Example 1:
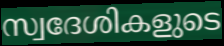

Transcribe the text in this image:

സ്വദേശികളുടെ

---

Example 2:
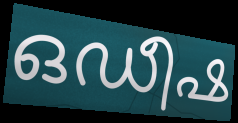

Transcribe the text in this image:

ഒഡീഷ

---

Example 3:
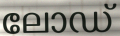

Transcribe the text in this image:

ലോഡ്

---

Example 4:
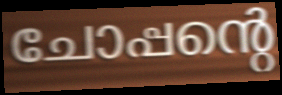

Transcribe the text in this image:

ചോപ്പന്റെ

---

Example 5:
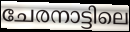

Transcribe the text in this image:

ചേരനാട്ടിലെ